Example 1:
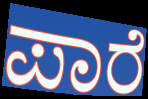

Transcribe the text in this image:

ಪಾರೆ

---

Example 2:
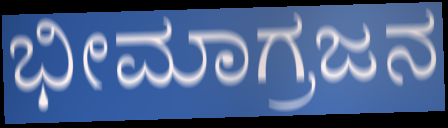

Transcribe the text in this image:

ಭೀಮಾಗ್ರಜನ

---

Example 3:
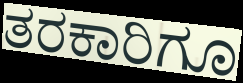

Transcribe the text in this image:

ತರಕಾರಿಗೂ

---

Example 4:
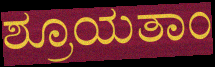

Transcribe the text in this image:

ಶ್ರೂಯತಾಂ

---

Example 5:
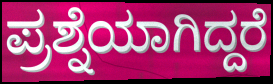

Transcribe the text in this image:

ಪ್ರಶ್ನೆಯಾಗಿದ್ದರೆ